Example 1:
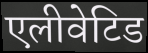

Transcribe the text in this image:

एलीवेटिड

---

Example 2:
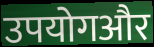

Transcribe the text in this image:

उपयोगऔर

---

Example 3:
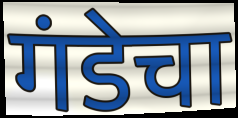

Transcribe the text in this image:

गंडेचा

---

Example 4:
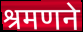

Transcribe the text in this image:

श्रमणने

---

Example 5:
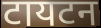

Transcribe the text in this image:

टायटन